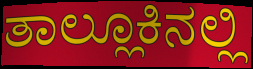
ತಾಲ್ಲೂಕಿನಲ್ಲಿ